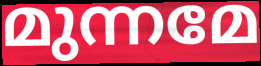
മുന്നമേ